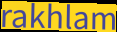
rakhlam